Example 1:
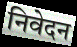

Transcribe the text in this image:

निवेदन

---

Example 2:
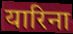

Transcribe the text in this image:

यारिना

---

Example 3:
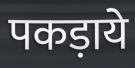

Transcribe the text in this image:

पकड़ाये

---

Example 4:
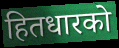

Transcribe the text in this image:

हितधारको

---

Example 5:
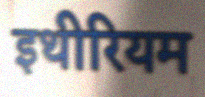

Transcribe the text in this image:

इथीरियम